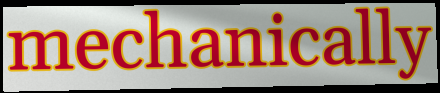
mechanically